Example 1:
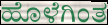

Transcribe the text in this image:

ಹೊಳೆಗಿಂತ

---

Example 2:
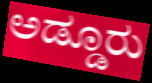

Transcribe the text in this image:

ಅಡ್ಡೂರು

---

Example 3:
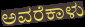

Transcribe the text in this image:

ಅವರೆಕಾಳು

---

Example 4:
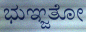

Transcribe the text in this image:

ಭುಞ್ಜತೋ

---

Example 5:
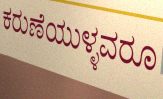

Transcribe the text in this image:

ಕರುಣೆಯುಳ್ಳವರೂ